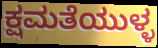
ಕ್ಷಮತೆಯುಳ್ಳ